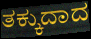
ತಕ್ಕುದಾದ